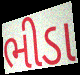
ભીડા